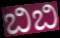
ಬಿಬಿ